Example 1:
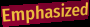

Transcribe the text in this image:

Emphasized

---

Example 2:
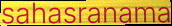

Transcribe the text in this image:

sahasranama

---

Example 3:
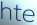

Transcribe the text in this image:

hte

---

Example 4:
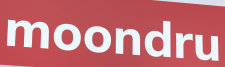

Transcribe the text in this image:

moondru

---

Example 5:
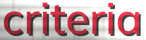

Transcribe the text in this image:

criteria